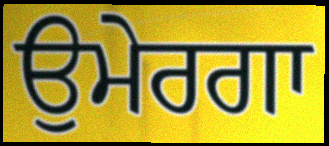
ਉਮੇਰਗਾ